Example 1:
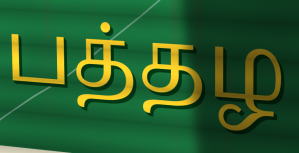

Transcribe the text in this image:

பத்தழ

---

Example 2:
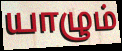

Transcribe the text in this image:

யாழும்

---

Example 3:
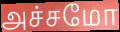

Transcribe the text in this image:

அச்சமோ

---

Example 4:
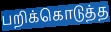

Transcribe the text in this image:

பறிக்கொடுத்த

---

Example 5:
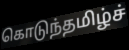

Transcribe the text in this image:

கொடுந்தமிழ்ச்